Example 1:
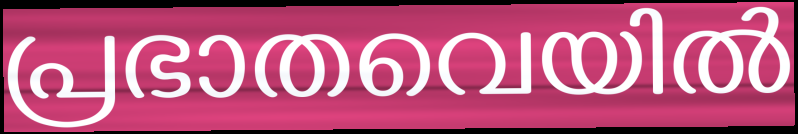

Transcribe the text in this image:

പ്രഭാതവെയിൽ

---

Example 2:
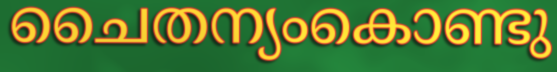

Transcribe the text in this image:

ചൈതന്യംകൊണ്ടു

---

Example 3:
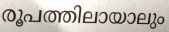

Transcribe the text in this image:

രൂപത്തിലായാലും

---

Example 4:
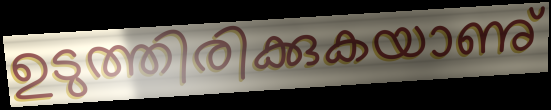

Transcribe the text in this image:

ഉടുത്തിരിക്കുകയാണു്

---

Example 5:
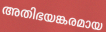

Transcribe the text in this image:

അതിഭയങ്കരമായ